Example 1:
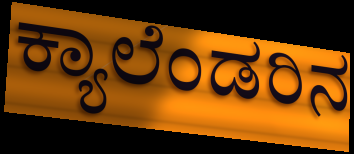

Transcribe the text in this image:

ಕ್ಯಾಲೆಂಡರಿನ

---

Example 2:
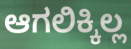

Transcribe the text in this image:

ಆಗಲಿಕ್ಕಿಲ್ಲ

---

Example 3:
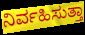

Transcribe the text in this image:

ನಿರ್ವಹಿಸುತ್ತಾ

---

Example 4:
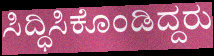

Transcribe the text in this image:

ಸಿದ್ಧಿಸಿಕೊಂಡಿದ್ದರು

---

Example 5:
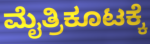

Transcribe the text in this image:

ಮೈತ್ರಿಕೂಟಕ್ಕೆ